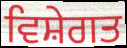
ਵਿਸ਼ੇਗਤ